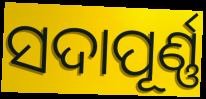
ସଦାପୂର୍ଣ୍ଣ